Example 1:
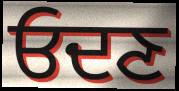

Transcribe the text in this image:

ਓਦਣ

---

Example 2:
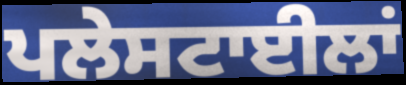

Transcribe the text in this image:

ਪਲੇਸਟਾਈਲਾਂ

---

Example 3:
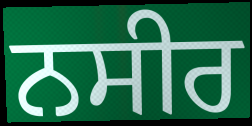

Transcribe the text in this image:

ਨਸੀਰ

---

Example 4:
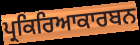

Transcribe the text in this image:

ਪ੍ਰਕਿਰਿਆਕਾਰਬਨ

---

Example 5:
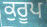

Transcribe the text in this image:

ਕੁਰੂਪ